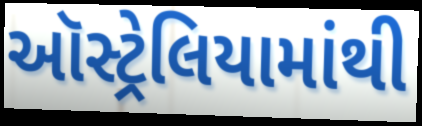
ઑસ્ટ્રેલિયામાંથી